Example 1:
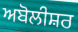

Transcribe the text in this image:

ਅਬੋਲੀਸ਼ਰ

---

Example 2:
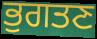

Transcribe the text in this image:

ਭੁਗਤਣ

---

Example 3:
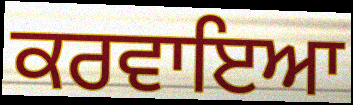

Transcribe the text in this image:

ਕਰਵਾਇਆ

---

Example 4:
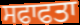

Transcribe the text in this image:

ਸਫਾਫਤਾ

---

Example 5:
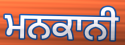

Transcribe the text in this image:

ਮਨਕਾਨੀ